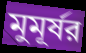
মুমূর্ষর